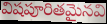
విషపూరితమైనవి